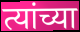
त्यांच्या